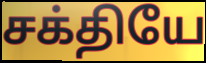
சக்தியே